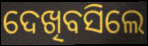
ଦେଖିବସିଲେ